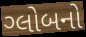
ગ્લોબનો